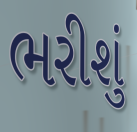
ભરીશું